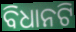
ବିଧାନଟି